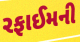
રફાઈમની